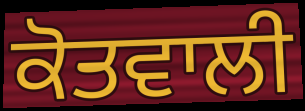
ਕੋਤਵਾਲੀ